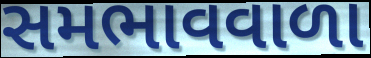
સમભાવવાળા